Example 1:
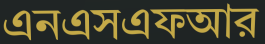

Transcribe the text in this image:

এনএসএফআর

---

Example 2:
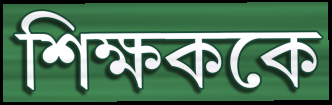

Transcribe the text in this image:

শিক্ষককে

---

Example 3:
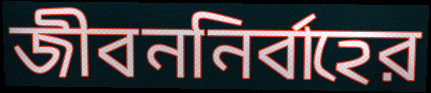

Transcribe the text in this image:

জীবননির্বাহের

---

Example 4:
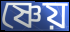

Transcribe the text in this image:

ষ্ণেয়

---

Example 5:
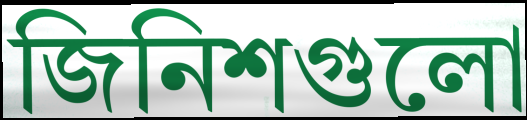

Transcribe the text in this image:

জিনিশগুলো